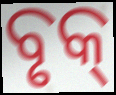
ବୃକ୍